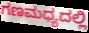
ಗಣಮಧ್ಯದಲ್ಲಿ